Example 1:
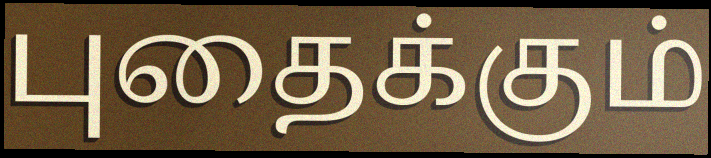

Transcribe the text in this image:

புதைக்கும்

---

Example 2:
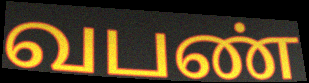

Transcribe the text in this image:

வபண்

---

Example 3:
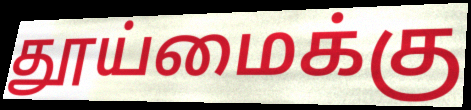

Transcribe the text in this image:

தூய்மைக்கு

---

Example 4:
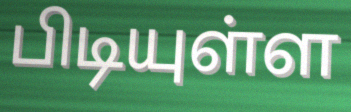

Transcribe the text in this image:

பிடியுள்ள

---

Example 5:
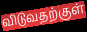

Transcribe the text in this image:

விடுவதற்குள்